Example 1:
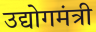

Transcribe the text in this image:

उद्योगमंत्री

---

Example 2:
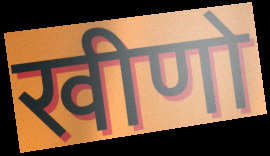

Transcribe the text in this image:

खीणो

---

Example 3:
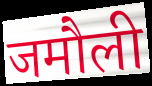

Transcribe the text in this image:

जमौली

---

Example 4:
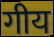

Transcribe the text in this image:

गीय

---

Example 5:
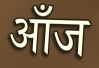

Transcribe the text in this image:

आँज